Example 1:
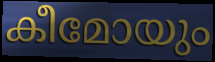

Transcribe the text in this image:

കീമോയും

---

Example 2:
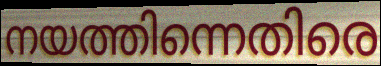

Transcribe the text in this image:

നയത്തിന്നെതിരെ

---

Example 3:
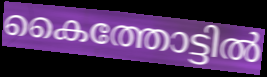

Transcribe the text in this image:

കൈത്തോട്ടിൽ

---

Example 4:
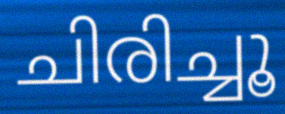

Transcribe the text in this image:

ചിരിച്ചൂ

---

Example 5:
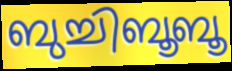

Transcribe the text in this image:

ബുച്ചിബൂബൂ